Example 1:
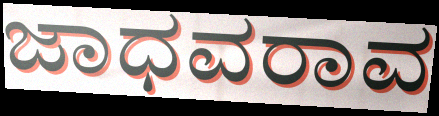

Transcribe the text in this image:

ಜಾಧವರಾವ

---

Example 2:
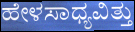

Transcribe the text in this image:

ಹೇಳಸಾಧ್ಯವಿತ್ತು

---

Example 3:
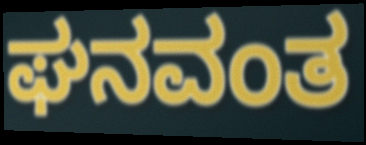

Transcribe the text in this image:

ಘನವಂತ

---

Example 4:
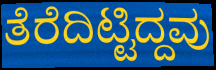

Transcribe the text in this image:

ತೆರೆದಿಟ್ಟಿದ್ದವು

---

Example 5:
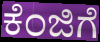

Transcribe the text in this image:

ಕೆಂಜಿಗೆ